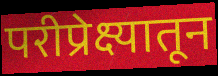
परीप्रेक्ष्यातून